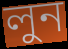
লুন